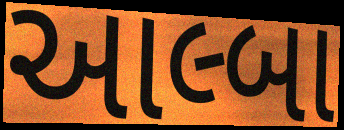
આલ્બા